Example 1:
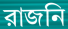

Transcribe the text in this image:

রাজনি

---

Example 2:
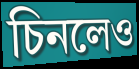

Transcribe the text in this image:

চিনলেও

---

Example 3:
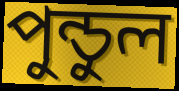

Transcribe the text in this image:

পুন্ডুল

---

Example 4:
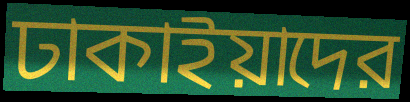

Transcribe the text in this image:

ঢাকাইয়াদের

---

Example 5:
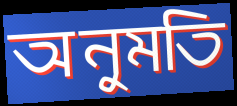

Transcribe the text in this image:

অনুমতি